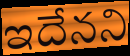
ఇదేనని